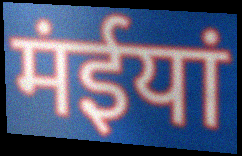
मंईयां